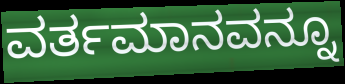
ವರ್ತಮಾನವನ್ನೂ